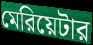
মেরিয়েটার